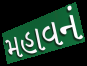
મહાવનં